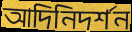
আদিনিদর্শন